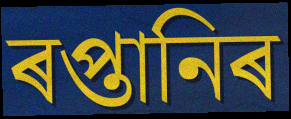
ৰপ্তানিৰ